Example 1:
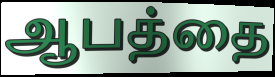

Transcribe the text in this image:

ஆபத்தை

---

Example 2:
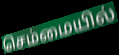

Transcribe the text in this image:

செம்மையில்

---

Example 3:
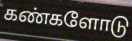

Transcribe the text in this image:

கண்களோடு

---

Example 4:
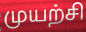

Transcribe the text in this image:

முயற்சி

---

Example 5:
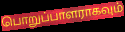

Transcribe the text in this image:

பொறுப்பாளராகவும்